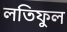
লতিফুল